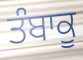
ਤੰਬਾਕੂ